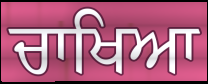
ਚਾਖਿਆ